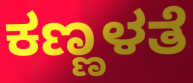
ಕಣ್ಣಳತೆ